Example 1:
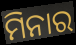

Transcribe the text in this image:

ମିନାର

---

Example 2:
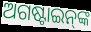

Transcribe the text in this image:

ଅଗଷ୍ଟାଇନ୍‌ଙ୍କ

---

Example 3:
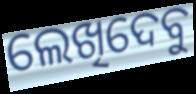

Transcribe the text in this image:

ଲେଖିଦେବୁ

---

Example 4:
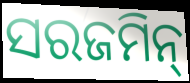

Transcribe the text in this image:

ସରଜମିନ୍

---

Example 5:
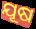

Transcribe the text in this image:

ଯୂଷ